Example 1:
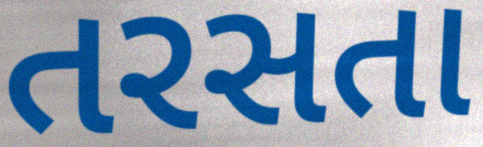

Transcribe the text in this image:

તરસતા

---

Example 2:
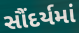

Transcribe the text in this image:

સૌંદર્યમાં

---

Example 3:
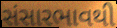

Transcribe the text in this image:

સંસારભાવથી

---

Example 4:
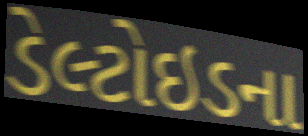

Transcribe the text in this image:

ડેલ્ટોઇડના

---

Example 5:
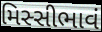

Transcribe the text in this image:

મિસ્સીભાવં